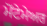
ਮੋਂਟੇਮੇਅਰ